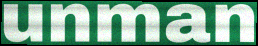
unman